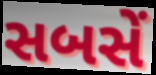
સબસેં